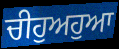
ਚੀਹੁਅਹੁਆ